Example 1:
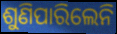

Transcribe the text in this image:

ଶୁଣିପାରିଲେନି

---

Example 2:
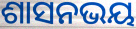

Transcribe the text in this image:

ଶାସନଭୟ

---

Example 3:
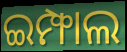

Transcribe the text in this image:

ଇମ୍ଫାଲ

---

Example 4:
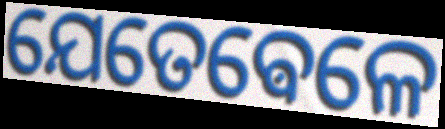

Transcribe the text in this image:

ଯେତେଵେଳେ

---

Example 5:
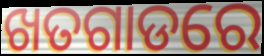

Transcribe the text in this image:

ଖତଗାଡରେ